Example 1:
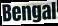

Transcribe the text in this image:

Bengal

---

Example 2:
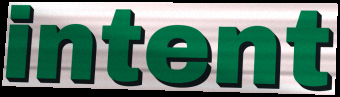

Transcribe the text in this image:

intent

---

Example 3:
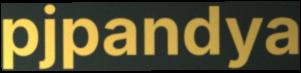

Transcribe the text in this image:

pjpandya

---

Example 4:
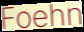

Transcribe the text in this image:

Foehn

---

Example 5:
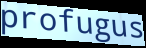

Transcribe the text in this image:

profugus